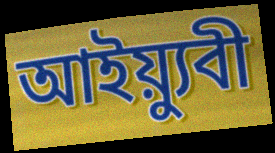
আইয়্যুবী